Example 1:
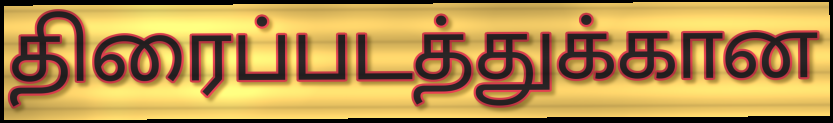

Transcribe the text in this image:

திரைப்படத்துக்கான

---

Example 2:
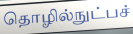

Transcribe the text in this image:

தொழில்நுட்பச்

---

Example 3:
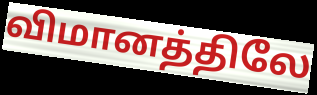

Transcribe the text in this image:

விமானத்திலே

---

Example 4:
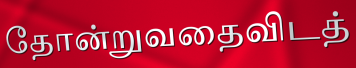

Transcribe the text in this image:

தோன்றுவதைவிடத்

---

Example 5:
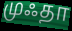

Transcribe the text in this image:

முஃதா